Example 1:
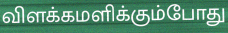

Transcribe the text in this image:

விளக்கமளிக்கும்போது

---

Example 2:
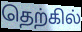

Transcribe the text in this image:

தெற்கில்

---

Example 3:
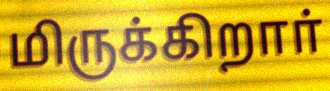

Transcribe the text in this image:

மிருக்கிறார்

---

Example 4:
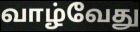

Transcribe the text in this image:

வாழ்வேது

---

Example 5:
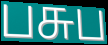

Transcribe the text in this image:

பசுப